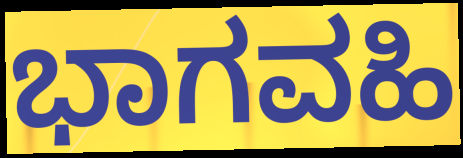
ಭಾಗವಹಿ